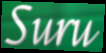
Suru